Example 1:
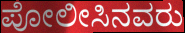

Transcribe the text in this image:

ಪೋಲೀಸಿನವರು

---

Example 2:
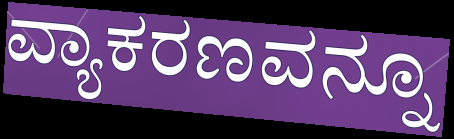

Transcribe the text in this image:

ವ್ಯಾಕರಣವನ್ನೂ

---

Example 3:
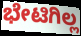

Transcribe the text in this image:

ಭೇಟಿಗಿಲ್ಲ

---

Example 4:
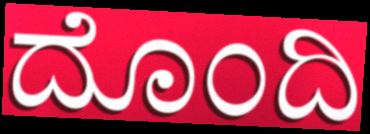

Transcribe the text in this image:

ದೊಂದಿ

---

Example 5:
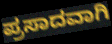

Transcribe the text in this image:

ಪ್ರಸಾದವಾಗಿ